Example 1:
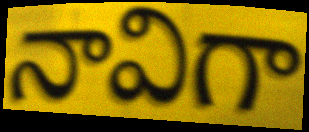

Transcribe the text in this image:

నావిగా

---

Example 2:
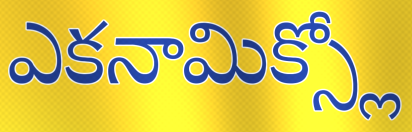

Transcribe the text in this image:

ఎకనామిక్స్లో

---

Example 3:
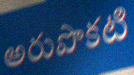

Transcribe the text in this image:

అరుపొకటి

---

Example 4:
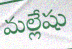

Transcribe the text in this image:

మల్లేషు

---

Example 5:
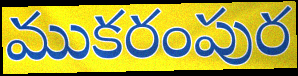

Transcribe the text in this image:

ముకరంపుర